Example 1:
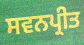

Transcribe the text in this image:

ਸਵਨਪ੍ਰੀਤ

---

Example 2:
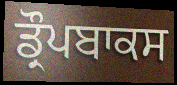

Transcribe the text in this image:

ਡ੍ਰੌਪਬਾਕਸ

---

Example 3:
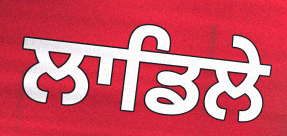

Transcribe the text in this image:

ਲਾਡਿਲੇ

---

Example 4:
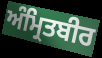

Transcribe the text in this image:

ਅੰਮ੍ਰਿਤਬੀਰ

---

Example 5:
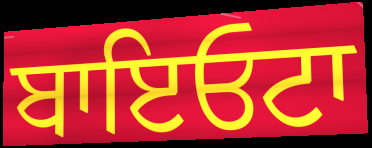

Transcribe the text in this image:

ਬਾਇਓਟਾ